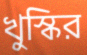
খুস্কির